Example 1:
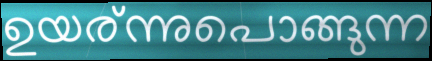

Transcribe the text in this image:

ഉയര്ന്നുപൊങ്ങുന്ന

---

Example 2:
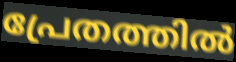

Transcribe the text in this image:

പ്രേതത്തിൽ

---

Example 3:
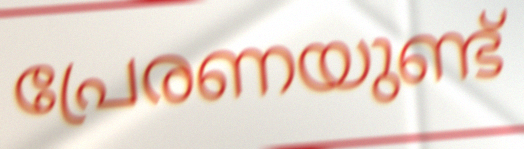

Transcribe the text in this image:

പ്രേരണയുണ്ട്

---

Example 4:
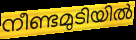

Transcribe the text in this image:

നീണ്ടമുടിയിൽ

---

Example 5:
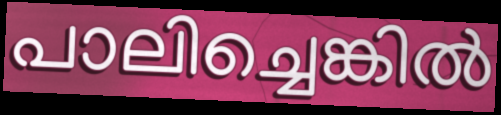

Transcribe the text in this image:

പാലിച്ചെങ്കിൽ